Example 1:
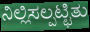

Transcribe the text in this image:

ನಿಲ್ಲಿಸಲ್ಪಟ್ಟಿತು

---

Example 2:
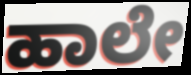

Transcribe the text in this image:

ಹಾಲೇ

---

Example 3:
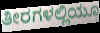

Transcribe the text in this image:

ತೀರಗಳಲ್ಲಿಯೂ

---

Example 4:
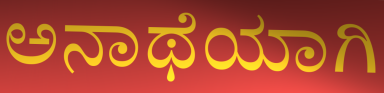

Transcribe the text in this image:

ಅನಾಥೆಯಾಗಿ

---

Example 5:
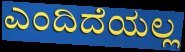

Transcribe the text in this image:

ಎಂದಿದೆಯಲ್ಲ